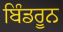
ਬਿੰਡਰੂਨ